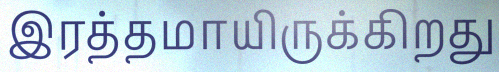
இரத்தமாயிருக்கிறது